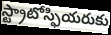
స్ట్రాటోస్ఫియరుకు